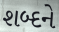
શબ્દને